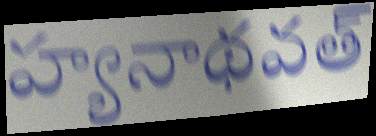
హ్యనాథవత్